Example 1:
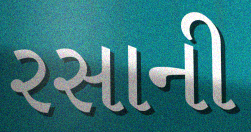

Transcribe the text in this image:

રસાની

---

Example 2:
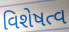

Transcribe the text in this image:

વિશેષત્વ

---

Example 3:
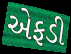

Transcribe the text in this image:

એફડી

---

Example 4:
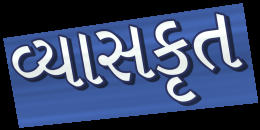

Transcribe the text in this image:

વ્યાસકૃત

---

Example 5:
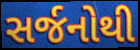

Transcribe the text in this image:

સર્જનોથી